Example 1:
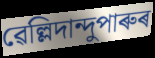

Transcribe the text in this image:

ৱেল্লিদান্দুপাৰুৰ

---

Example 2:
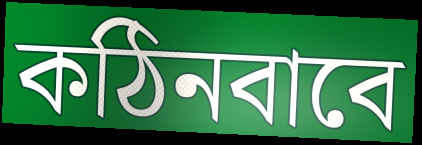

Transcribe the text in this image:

কঠিনবাবে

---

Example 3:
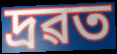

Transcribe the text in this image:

দ্ৰৱত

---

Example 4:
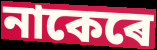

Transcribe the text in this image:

নাকেৰে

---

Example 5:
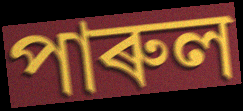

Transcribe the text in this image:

পাৰুল